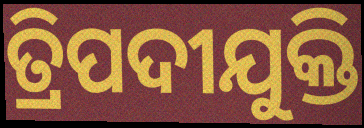
ତ୍ରିପଦୀଯୁକ୍ତି